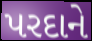
પરદાને